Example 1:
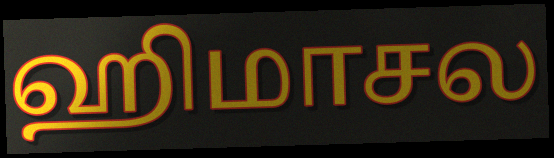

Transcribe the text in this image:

ஹிமாசல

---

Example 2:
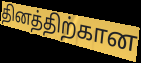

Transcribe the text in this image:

தினத்திற்கான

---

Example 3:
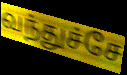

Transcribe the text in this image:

வந்துச்சே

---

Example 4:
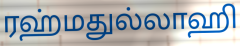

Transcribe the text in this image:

ரஹ்மதுல்லாஹி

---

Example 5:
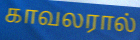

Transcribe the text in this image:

காவலரால்